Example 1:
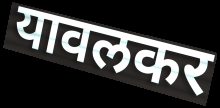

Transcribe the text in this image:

यावलकर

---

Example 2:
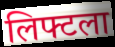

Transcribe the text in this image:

लिफ्टला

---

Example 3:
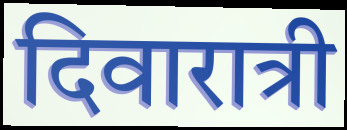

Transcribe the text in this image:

दिवारात्री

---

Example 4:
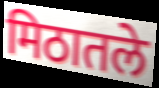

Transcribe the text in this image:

मिठातले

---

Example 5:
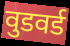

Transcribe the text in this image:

वुडवर्ड